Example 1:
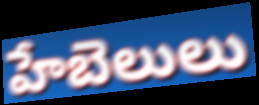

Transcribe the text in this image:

హేబెలులు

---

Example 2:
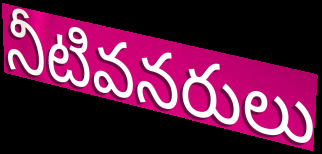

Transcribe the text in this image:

నీటివనరులు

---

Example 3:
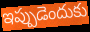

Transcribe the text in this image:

ఇప్పుడెందుకు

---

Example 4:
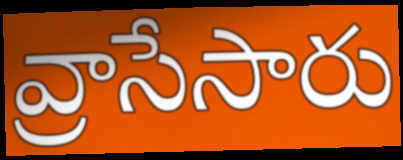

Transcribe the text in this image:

వ్రాసేసారు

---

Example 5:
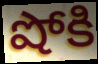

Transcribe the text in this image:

షోకి